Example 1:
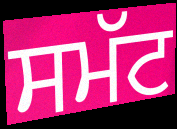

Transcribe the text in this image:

ਸਮੱਟ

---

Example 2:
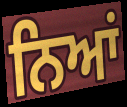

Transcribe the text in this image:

ਨਿਆਂ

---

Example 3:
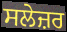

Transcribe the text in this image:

ਸਲੇਜ਼ਰ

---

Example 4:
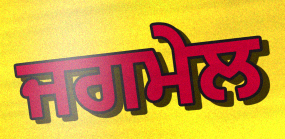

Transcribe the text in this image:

ਜਗਮੇਲ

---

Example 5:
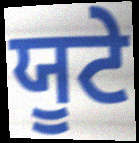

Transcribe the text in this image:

ਯੂਟੇ